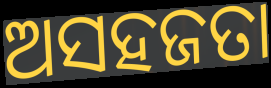
ଅସହଜତା